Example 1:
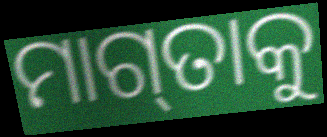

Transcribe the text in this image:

ମାଗ୍‌ତାକୁ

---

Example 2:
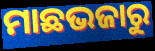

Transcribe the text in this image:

ମାଛଭଜାରୁ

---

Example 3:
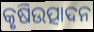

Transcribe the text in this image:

କୃଷିଉତ୍ପାଦନ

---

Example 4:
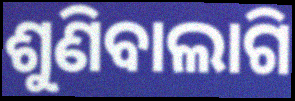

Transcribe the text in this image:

ଶୁଣିବାଲାଗି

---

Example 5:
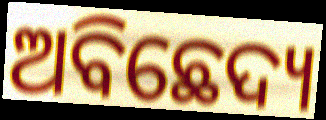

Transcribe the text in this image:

ଅବିଛେଦ୍ୟ